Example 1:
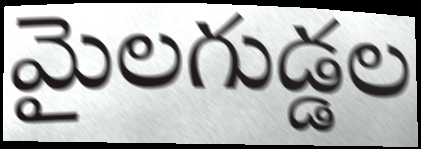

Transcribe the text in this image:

మైలగుడ్డల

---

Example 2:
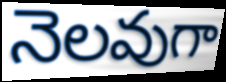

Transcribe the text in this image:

నెలవుగా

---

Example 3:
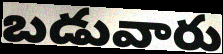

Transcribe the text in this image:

బడువారు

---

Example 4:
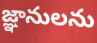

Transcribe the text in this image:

జ్ఞానులను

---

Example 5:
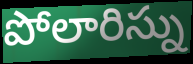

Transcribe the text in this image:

పోలారిస్ను